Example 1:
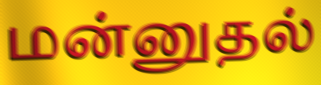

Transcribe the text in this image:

மன்னுதல்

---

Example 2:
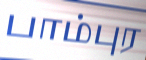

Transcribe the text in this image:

பாம்புர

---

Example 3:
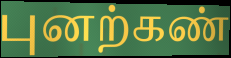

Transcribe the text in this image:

புனற்கண்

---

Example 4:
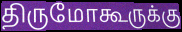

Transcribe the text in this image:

திருமோகூருக்கு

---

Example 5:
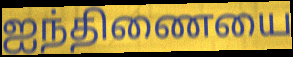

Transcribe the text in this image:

ஐந்திணையை